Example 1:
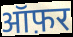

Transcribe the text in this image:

ऑफ़र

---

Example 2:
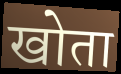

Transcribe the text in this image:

खोता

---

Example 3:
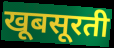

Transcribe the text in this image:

खूबसूरती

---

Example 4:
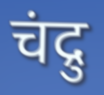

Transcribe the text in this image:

चंद्रु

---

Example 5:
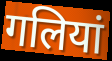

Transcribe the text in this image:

गलियां